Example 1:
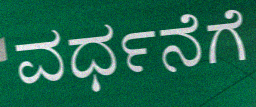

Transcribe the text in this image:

ವರ್ಧನೆಗೆ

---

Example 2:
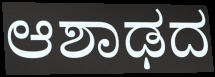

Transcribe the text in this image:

ಆಶಾಢದ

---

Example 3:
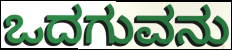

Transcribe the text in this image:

ಒದಗುವನು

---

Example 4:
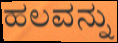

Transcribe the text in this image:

ಹಲವನ್ನು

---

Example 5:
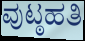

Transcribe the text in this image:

ವುಟ್ಠಹತಿ